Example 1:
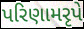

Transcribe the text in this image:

પરિણામરૃપે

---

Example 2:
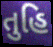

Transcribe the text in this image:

તુહિ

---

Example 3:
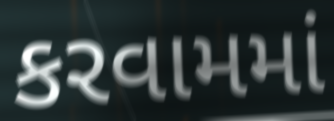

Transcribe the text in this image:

કરવામમાં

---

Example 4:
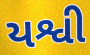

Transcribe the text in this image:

યશ્વી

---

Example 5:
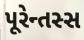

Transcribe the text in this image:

પૂરેન્તસ્સ